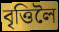
বৃত্তিলৈ